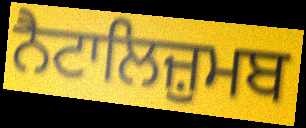
ਨੈਟਾਲਿਜ਼ੁਮਬ